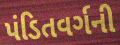
પંડિતવર્ગની